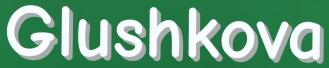
Glushkova